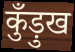
कुँड़ुख